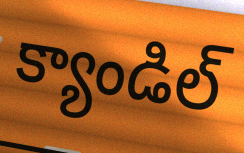
క్యాండిల్